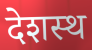
देशस्थ